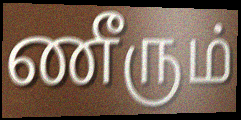
ணீரும்